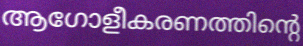
ആഗോളീകരണത്തിന്റെ